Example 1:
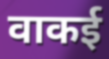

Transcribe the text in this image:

वाकई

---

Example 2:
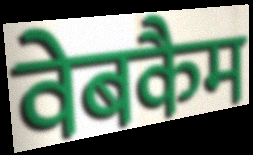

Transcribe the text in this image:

वेबकैम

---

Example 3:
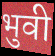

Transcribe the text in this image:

भुवी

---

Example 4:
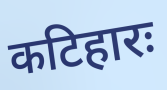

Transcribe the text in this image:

कटिहारः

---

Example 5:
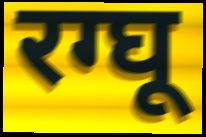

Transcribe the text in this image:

रग्घू